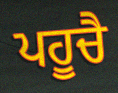
ਪਹੂਚੈ